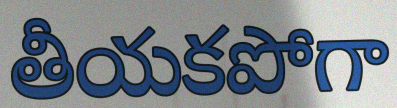
తీయకపోగా